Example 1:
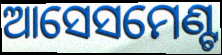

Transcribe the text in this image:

ଆସେସମେଣ୍ଟ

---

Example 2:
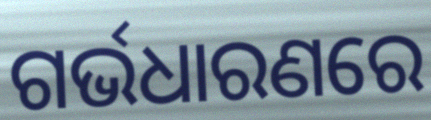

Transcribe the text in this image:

ଗର୍ଭଧାରଣରେ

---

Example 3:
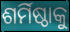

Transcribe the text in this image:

ଶର୍ମିଷ୍ଠାକୁ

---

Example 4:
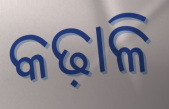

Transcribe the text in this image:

କଢ଼ାଳି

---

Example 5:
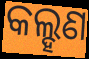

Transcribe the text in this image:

କଲ୍ହଣ